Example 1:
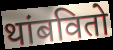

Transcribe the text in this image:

थांबवितो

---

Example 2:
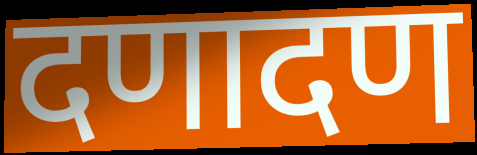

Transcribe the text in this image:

दणादण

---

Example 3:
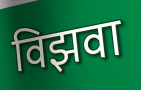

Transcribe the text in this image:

विझवा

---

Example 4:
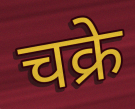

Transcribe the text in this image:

चक्रे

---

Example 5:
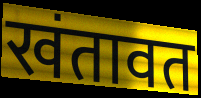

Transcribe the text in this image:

खंतावत